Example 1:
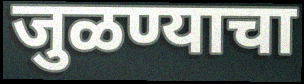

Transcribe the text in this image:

जुळण्याचा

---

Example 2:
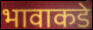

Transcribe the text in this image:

भावाकडे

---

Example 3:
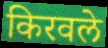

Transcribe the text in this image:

किरवले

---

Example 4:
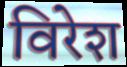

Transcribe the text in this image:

विरेश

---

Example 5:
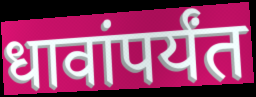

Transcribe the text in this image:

धावांपर्यंत